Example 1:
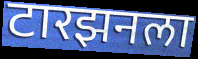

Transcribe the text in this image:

टारझनला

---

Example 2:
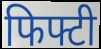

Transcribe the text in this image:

फिफ्टी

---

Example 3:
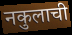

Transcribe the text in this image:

नकुलाची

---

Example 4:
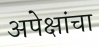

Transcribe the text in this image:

अपेक्षांचा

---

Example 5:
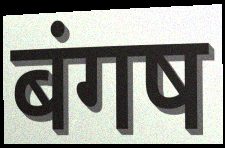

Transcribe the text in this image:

बंगष